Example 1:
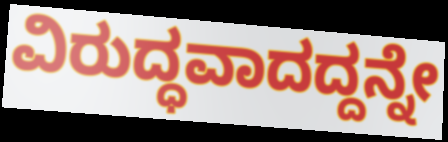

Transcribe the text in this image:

ವಿರುದ್ಧವಾದದ್ದನ್ನೇ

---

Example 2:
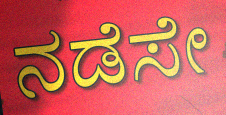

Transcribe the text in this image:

ನಡೆಸೇ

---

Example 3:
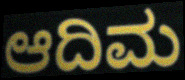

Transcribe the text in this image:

ಆದಿಮ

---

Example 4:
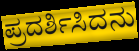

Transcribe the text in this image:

ಪ್ರದರ್ಶಿಸಿದನು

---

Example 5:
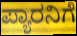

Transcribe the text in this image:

ಪ್ಯಾರನಿಗೆ